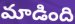
మాడింది